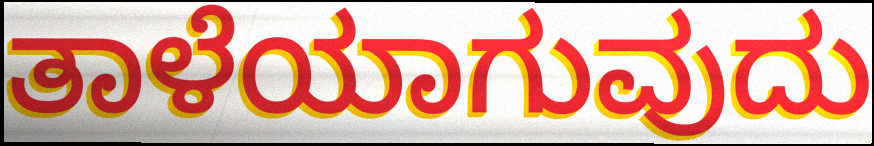
ತಾಳೆಯಾಗುವುದು